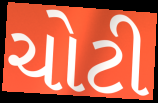
ચોટી